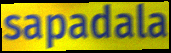
sapadala